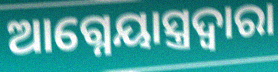
ଆଗ୍ନେୟାସ୍ତ୍ରଦ୍ୱାରା